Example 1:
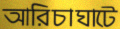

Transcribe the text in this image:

আরিচাঘাটে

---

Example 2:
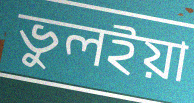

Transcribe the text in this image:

ভুলইয়া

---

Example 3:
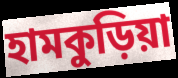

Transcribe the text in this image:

হামকুড়িয়া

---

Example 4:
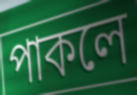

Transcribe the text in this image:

পাকলে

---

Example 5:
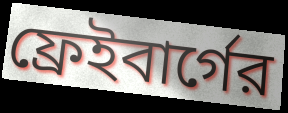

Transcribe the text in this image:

ফ্রেইবার্গের